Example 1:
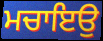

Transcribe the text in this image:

ਮਚਾਇਉ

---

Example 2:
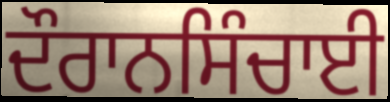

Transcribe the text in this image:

ਦੌਰਾਨਸਿੰਚਾਈ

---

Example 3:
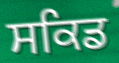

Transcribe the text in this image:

ਸਕਿਡ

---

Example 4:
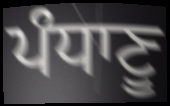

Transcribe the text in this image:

ਪੰਧਾਣੂ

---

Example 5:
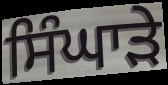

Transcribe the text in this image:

ਸਿੰਘਾੜੇ